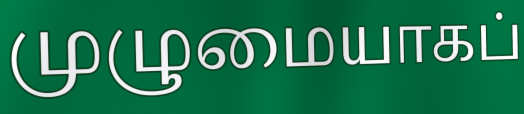
முழுமையாகப்